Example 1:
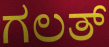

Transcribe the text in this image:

ಗಲತ್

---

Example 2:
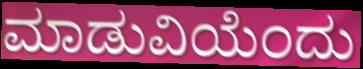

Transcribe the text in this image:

ಮಾಡುವಿಯೆಂದು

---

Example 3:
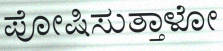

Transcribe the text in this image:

ಪೋಷಿಸುತ್ತಾಳೋ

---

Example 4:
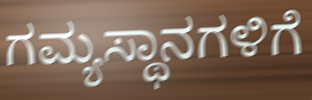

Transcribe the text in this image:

ಗಮ್ಯಸ್ಥಾನಗಳಿಗೆ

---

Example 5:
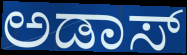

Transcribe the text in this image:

ಅಡಾಸ್